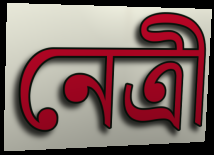
নেত্রী